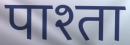
पाश्ता